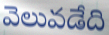
వెలువడేది